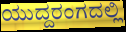
ಯುದ್ದರಂಗದಲ್ಲಿ